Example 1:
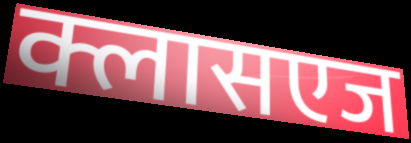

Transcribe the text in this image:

क्लासएज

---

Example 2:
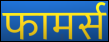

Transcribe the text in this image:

फामर्स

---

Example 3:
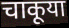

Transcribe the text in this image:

चाकूया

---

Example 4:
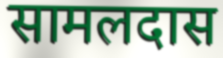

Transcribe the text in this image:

सामलदास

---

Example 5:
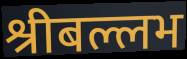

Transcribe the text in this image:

श्रीबल्लभ